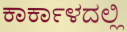
ಕಾರ್ಕಾಳದಲ್ಲಿ